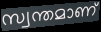
സ്വന്തമാണ്